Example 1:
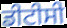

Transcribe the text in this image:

ਡੀਟੀਸੀ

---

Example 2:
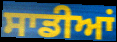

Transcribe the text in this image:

ਸਾਡੀਆਂ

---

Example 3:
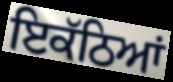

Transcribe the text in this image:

ਇਕੱਠਿਆਂ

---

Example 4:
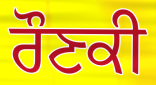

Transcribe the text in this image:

ਰੌਣਕੀ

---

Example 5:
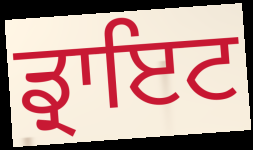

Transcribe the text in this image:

ਡ੍ਰਾਇਟ